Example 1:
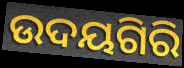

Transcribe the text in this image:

ଉଦୟଗିରି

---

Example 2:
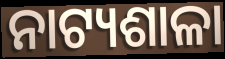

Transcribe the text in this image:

ନାଟ୍ୟଶାଳା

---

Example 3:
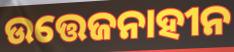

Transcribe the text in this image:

ଉତ୍ତେଜନାହୀନ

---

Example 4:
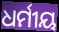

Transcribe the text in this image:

ଧର୍ମୀୟ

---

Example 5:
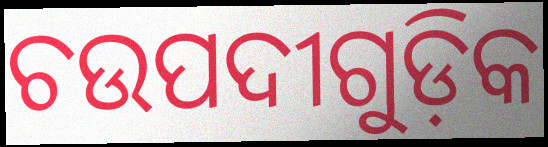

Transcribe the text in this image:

ଚଉପଦୀଗୁଡ଼ିକ